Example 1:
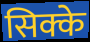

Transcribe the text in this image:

सिक्के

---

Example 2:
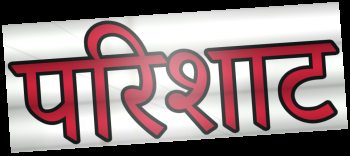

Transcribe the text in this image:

परिशाट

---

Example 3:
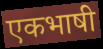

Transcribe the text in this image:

एकभाषी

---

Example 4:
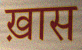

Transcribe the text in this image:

ख़ास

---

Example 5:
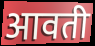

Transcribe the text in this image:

आवती